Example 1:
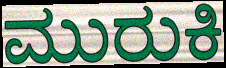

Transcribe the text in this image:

ಮುರುಕಿ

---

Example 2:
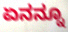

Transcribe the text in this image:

ಏನನ್ನೂ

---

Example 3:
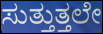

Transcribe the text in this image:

ಸುತ್ತುತ್ತಲೇ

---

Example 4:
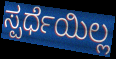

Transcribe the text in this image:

ಸ್ಪರ್ಧೆಯಿಲ್ಲ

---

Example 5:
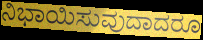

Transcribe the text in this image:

ನಿಭಾಯಿಸುವುದಾದರೂ